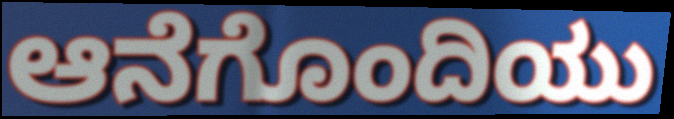
ಆನೆಗೊಂದಿಯು